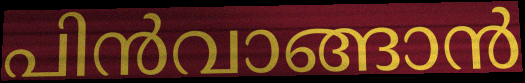
പിൻവാങ്ങാൻ